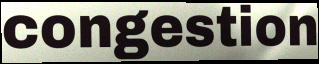
congestion